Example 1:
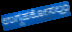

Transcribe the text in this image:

ಉಗ್ಗಹಕೋಸಲ್ಲಂ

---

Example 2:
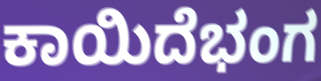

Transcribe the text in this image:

ಕಾಯಿದೆಭಂಗ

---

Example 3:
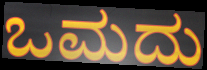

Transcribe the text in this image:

ಒಮದು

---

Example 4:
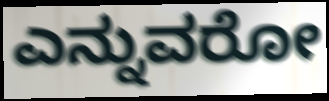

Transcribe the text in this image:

ಎನ್ನುವರೋ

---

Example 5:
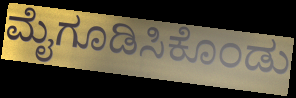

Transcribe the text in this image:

ಮೈಗೂಡಿಸಿಕೊಂಡು